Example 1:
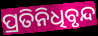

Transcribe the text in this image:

ପ୍ରତିନିଧିବୃନ୍ଦ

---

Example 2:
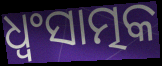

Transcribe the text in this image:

ଧ୍ଵଂସାତ୍ମକ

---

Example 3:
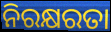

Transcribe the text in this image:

ନିରକ୍ଷରତା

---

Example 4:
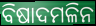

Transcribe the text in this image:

ବିଷାଦମଳିନ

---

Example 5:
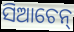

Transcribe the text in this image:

ସିଆଚେନ୍